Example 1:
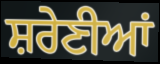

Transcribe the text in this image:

ਸ਼ਰੇਣੀਆਂ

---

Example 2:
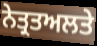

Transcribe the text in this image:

ਨੇਤ੍ਰਤਅਲਤੇ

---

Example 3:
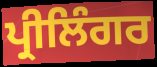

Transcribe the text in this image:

ਪ੍ਰੀਲਿੰਗਰ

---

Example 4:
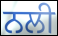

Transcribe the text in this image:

ਨਲੀ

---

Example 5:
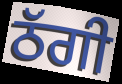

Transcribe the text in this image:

ਠੱਗੀ